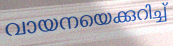
വായനയെക്കുറിച്ച്